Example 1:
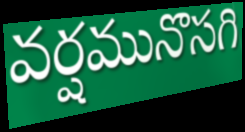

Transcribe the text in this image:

వర్షమునొసగి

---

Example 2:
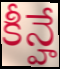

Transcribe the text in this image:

కీన్హే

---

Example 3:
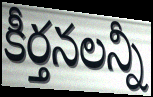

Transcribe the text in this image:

కీర్తనలన్నీ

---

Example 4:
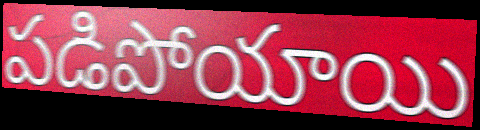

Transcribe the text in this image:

పడిపోయాయి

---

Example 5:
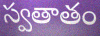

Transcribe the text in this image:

స్వతాతం